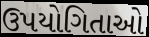
ઉપયોગિતાઓ